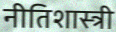
नीतिशास्त्री